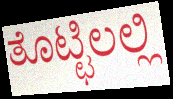
ತೊಟ್ಟಿಲಲ್ಲಿ